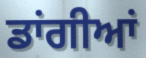
ਡਾਂਗੀਆਂ